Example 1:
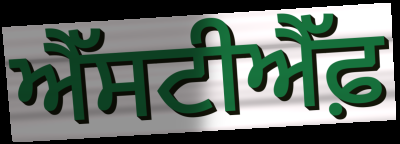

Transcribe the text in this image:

ਐੱਸਟੀਐੱਫ਼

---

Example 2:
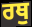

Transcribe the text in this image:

ਰਥੁ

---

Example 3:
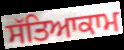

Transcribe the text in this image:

ਸੱਤਿਆਕਾਮ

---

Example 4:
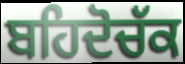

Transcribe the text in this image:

ਬਹਿਦੋਚੱਕ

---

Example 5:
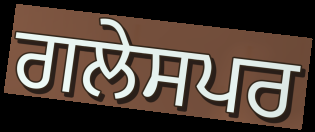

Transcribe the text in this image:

ਗਲੇਸਪਰ